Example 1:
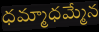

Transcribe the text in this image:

ధమ్మాధమ్మేన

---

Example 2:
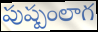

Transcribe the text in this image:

పుష్పంలాగ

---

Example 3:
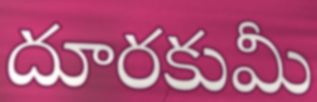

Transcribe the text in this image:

దూరకుమీ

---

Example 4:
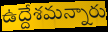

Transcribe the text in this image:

ఉద్దేశమన్నారు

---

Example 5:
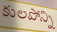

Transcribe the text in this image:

కులపోన్ని